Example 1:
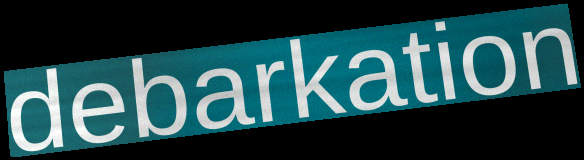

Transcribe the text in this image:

debarkation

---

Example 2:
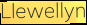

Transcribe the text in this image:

Llewellyn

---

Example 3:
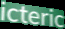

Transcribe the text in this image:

icteric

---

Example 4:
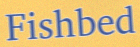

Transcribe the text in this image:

Fishbed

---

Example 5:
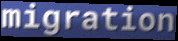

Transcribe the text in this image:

migration